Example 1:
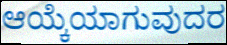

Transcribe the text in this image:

ಆಯ್ಕೆಯಾಗುವುದರ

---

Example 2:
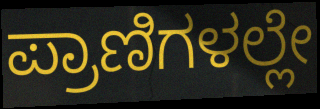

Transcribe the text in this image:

ಪ್ರಾಣಿಗಳಲ್ಲೇ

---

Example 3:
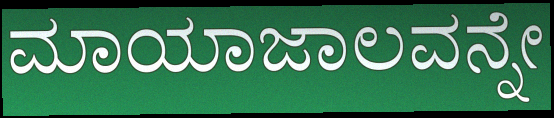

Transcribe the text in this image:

ಮಾಯಾಜಾಲವನ್ನೇ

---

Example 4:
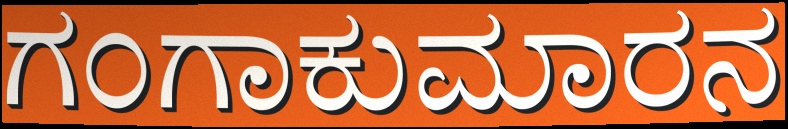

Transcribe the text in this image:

ಗಂಗಾಕುಮಾರನ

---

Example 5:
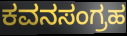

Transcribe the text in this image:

ಕವನಸಂಗ್ರಹ